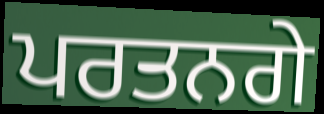
ਪਰਤਨਗੇ